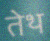
तेथ